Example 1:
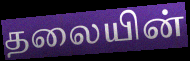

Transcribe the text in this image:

தலையின்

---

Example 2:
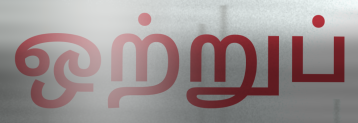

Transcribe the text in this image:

ஒற்றுப்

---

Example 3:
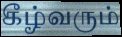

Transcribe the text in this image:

கீழ்வரும்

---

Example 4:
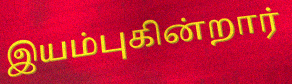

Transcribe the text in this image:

இயம்புகின்றார்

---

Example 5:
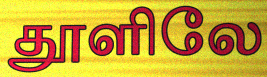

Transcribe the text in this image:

தூளிலே